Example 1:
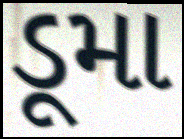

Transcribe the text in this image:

ડૂમા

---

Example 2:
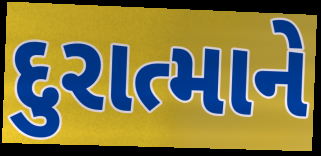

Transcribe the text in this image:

દુરાત્માને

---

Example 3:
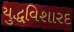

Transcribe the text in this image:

યુદ્ધવિશારદ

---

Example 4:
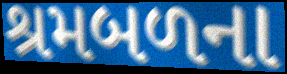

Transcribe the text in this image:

શ્રમબળના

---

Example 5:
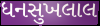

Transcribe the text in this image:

ધનસુખલાલ